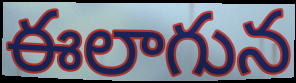
ఈలాగున